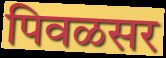
पिवळसर